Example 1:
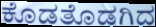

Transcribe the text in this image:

ಕೊಡತೊಡಗಿದ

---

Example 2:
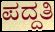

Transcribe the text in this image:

ಪದ್ದತಿ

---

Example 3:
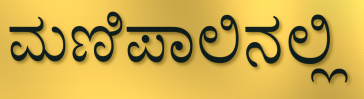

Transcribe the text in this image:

ಮಣಿಪಾಲಿನಲ್ಲಿ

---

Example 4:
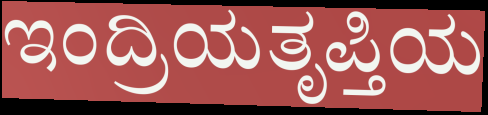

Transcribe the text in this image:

ಇಂದ್ರಿಯತೃಪ್ತಿಯ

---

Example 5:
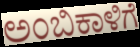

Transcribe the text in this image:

ಅಂಬಿಕಾಳಿಗೆ